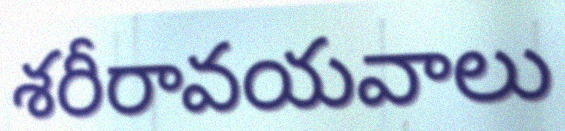
శరీరావయవాలు